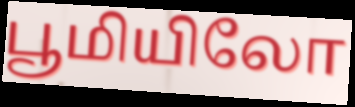
பூமியிலோ